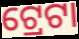
ଟ୍ରେଟା